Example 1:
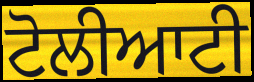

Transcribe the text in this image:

ਟੋਲੀਆਟੀ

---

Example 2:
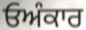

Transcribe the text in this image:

ਓਅੰਕਾਰ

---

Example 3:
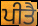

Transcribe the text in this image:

ਪੀਤੈ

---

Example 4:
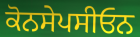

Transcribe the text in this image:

ਕੋਨਸੇਪਸੀਓਨ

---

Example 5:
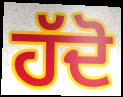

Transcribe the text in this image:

ਹੱਦੋ